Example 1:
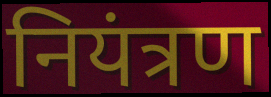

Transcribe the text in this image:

नियंत्रण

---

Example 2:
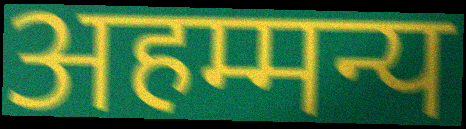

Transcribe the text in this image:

अहम्मन्य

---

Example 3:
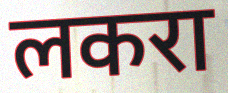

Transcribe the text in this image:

लकरा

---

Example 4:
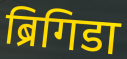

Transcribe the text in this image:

ब्रिगिडा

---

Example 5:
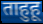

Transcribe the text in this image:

ताहुहू